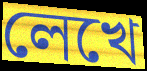
লেখে